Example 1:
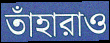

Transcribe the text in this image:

তাঁহারাও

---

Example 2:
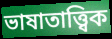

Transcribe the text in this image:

ভাষাতাত্ত্বিক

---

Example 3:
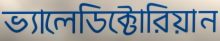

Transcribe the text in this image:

ভ্যালেডিক্টোরিয়ান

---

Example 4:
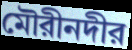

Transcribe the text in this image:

মৌরীনদীর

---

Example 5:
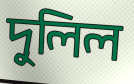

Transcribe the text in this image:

দুলিল